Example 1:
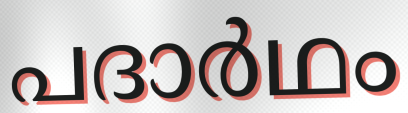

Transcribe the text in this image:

പദാർഥം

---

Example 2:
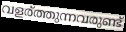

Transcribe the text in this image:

വളര്ത്തുന്നവരുണ്ട്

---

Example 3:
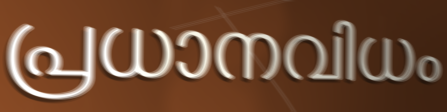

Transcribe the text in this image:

പ്രധാനവിധം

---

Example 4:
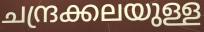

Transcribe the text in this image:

ചന്ദ്രക്കലയുള്ള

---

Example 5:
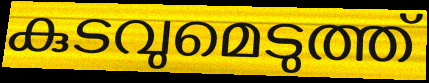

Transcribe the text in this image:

കുടവുമെടുത്ത്